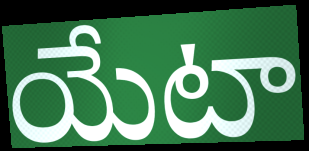
యేటా